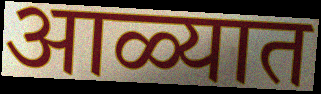
आळ्यात